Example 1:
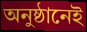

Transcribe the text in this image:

অনুষ্ঠানেই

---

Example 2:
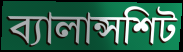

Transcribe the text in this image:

ব্যালান্সশিট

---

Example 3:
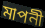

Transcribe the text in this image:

মাপনী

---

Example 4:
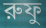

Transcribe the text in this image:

রুফু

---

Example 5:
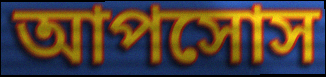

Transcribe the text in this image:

আপসোস